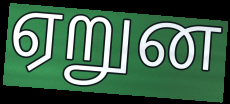
ஏறுன